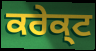
ਕਰੇਕ੍ਟ